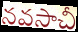
నవసాచీ